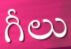
గీలు